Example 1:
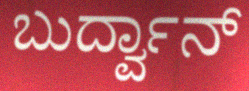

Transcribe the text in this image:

ಬುರ್ದ್ವಾನ್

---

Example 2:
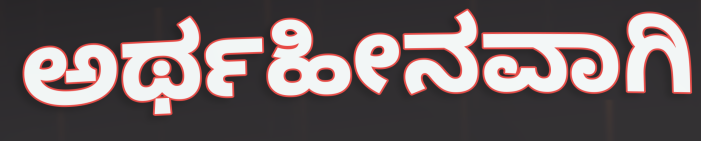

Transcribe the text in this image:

ಅರ್ಥಹೀನವಾಗಿ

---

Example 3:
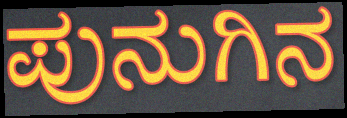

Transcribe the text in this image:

ಪುನುಗಿನ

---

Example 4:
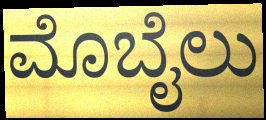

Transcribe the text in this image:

ಮೊಬೈಲು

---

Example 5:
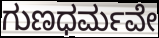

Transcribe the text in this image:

ಗುಣಧರ್ಮವೇ